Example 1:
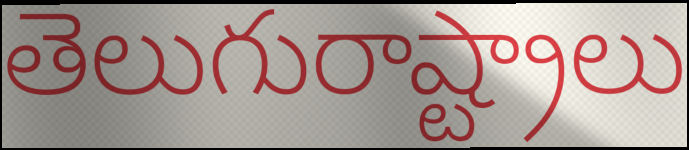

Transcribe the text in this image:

తెలుగురాష్ట్రాలు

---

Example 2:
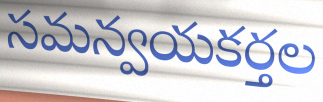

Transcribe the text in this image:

సమన్వయకర్తల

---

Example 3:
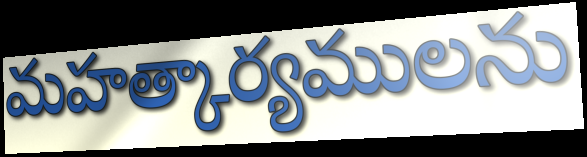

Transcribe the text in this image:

మహత్కార్యములను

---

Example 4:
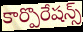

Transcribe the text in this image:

కార్పొరేషన్స్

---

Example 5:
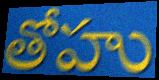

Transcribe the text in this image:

తోహు